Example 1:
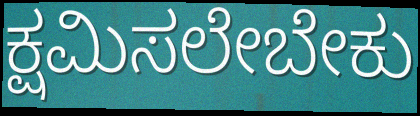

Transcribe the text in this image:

ಕ್ಷಮಿಸಲೇಬೇಕು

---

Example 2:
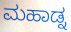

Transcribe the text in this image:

ಮಹಾಡ್ನ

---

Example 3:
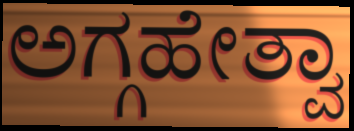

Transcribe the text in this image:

ಅಗ್ಗಹೇತ್ವಾ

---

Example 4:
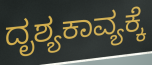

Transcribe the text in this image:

ದೃಶ್ಯಕಾವ್ಯಕ್ಕೆ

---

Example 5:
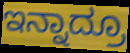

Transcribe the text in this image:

ಇನ್ನಾದ್ರೂ